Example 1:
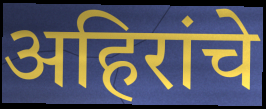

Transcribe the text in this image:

अहिरांचे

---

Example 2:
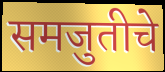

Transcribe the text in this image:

समजुतीचे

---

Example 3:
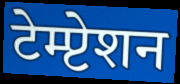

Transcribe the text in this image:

टेम्प्टेशन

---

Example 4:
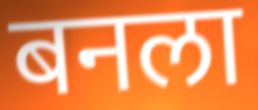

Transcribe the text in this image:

बनला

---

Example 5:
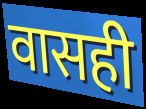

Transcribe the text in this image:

वासही